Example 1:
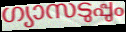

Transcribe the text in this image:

ഗ്യാസടുപ്പും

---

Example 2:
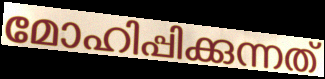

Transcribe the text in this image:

മോഹിപ്പിക്കുന്നത്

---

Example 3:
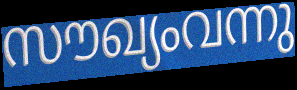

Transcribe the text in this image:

സൗഖ്യംവന്നു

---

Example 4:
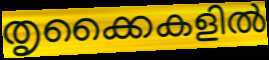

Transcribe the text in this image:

തൃക്കൈകളിൽ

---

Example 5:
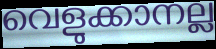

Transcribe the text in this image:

വെളുക്കാനല്ല